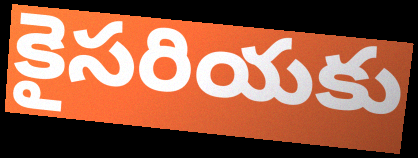
కైసరియకు